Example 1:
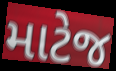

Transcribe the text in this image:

માટેજ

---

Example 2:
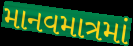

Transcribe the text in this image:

માનવમાત્રમાં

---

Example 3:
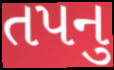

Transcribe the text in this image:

તપનુ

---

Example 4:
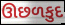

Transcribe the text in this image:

ઊછળકુદ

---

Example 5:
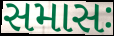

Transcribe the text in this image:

સમાસઃ